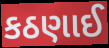
કઠણાઈ